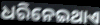
ଧରିନେଇଥାଏ